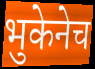
भुकेनेच